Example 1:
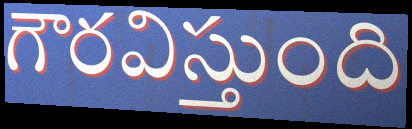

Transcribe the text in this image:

గౌరవిస్తుంది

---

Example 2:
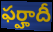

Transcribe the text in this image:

ఫర్హాదీ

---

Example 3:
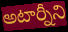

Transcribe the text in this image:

అటార్నీని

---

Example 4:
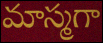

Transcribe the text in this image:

మాస్మగా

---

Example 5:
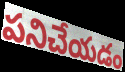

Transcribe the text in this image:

పనిచేయడం